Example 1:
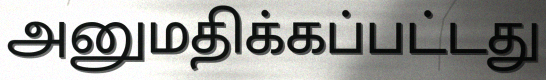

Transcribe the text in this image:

அனுமதிக்கப்பட்டது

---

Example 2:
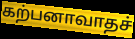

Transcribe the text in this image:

கற்பனாவாதச்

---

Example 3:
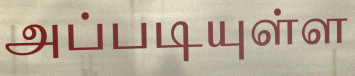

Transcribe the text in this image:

அப்படியுள்ள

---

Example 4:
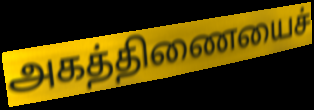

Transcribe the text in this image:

அகத்திணையைச்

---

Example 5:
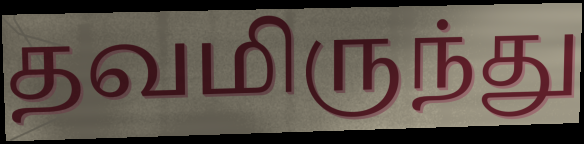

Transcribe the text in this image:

தவமிருந்து